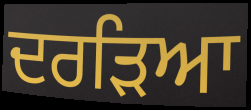
ਦਰੜਿਆ